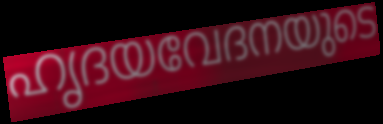
ഹൃദയവേദനയുടെ